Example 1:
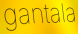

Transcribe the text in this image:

gantala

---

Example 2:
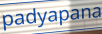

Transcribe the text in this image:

padyapana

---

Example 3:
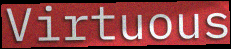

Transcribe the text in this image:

Virtuous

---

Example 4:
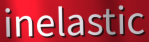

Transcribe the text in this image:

inelastic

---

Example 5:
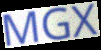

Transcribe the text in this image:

MGX